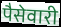
पैसेवारी